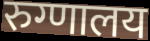
रुग्णालय